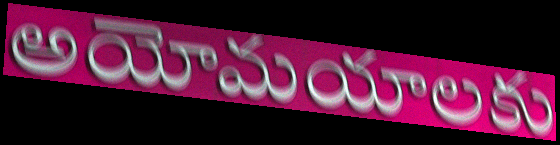
అయోమయాలకు